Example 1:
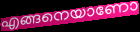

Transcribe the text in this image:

എങ്ങനെയാണോ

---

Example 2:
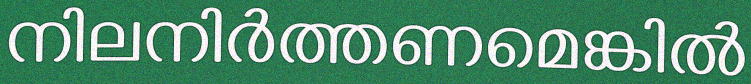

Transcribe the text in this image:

നിലനിർത്തണമെങ്കിൽ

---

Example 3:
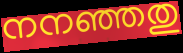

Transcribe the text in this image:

നനഞ്ഞതു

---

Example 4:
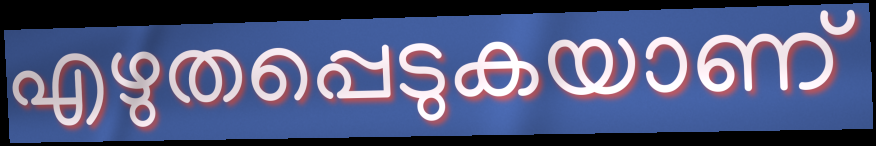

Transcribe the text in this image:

എഴുതപ്പെടുകയാണ്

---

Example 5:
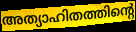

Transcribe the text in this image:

അത്യാഹിതത്തിന്റെ